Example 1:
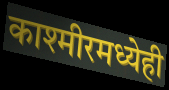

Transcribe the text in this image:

काश्‍मीरमध्येही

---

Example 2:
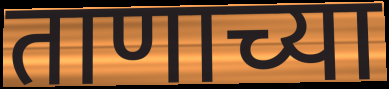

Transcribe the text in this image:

ताणाच्या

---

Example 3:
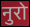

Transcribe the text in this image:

नुरो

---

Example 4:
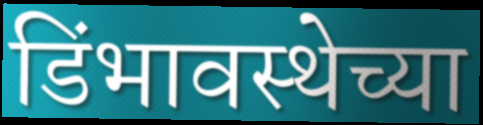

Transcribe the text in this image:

डिंभावस्थेच्या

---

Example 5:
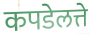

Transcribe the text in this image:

कपडेलत्ते